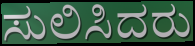
ಸುಲಿಸಿದರು